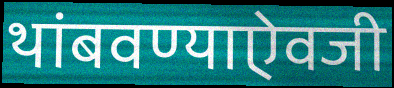
थांबवण्याऐवजी